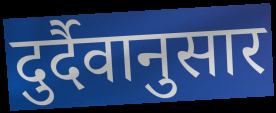
दुर्दैवानुसार